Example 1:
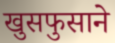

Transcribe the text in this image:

खुसफुसाने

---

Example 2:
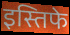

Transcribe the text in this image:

इस्तिफे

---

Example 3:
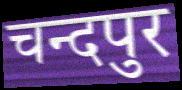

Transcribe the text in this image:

चन्दपुर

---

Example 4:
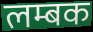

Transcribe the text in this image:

लम्बक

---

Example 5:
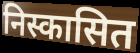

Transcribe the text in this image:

निस्कासित